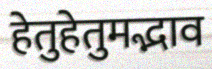
हेतुहेतुमद्भाव